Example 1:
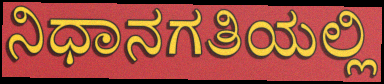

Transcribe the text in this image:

ನಿಧಾನಗತಿಯಲ್ಲಿ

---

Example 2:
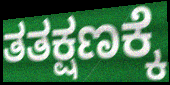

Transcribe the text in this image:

ತತಕ್ಷಣಕ್ಕೆ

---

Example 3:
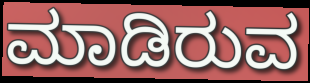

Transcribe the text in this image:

ಮಾಡಿರುವ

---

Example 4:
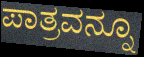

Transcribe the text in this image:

ಪಾತ್ರವನ್ನೂ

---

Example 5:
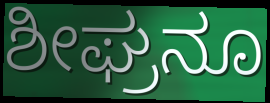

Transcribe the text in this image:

ಶೀಘ್ರನೂ